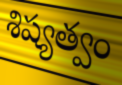
శిష్యత్వం